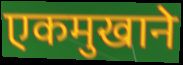
एकमुखाने